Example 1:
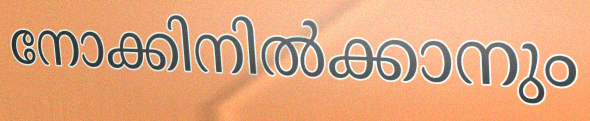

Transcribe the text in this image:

നോക്കിനിൽക്കാനും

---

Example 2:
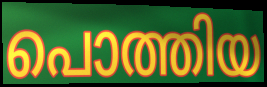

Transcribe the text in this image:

പൊത്തിയ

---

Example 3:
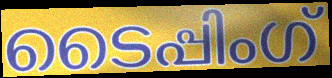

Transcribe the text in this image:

ടൈപ്പിംഗ്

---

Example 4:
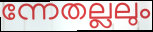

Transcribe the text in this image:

ന്നേതല്ലലും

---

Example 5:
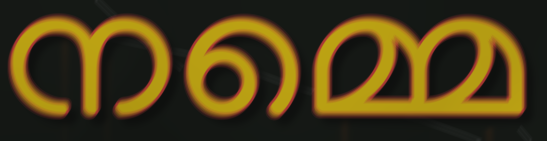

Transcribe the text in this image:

നമ്മെ